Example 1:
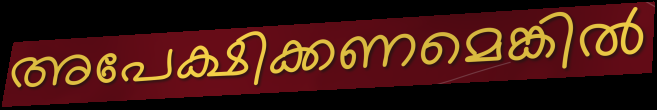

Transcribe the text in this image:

അപേക്ഷിക്കണമെങ്കിൽ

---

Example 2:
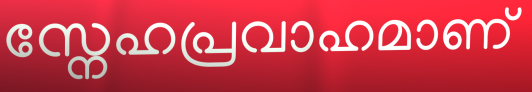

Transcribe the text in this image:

സ്നേഹപ്രവാഹമാണ്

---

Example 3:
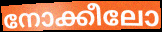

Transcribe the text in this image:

നോക്കീലോ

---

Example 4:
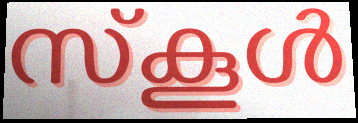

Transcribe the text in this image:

സ്‌കൂൾ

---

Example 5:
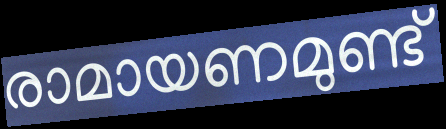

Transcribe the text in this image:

രാമായണമുണ്ട്